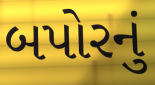
બપોરનું